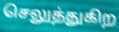
செலுத்துகிற